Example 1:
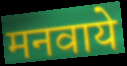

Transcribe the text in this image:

मनवाये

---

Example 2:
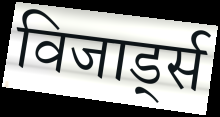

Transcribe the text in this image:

विजार्ड्स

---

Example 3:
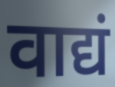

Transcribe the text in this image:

वाद्यं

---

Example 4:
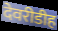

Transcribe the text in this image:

देवरीडीह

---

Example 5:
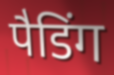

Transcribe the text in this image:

पैडिंग